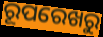
ରୂପରେଖରୁ